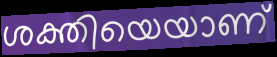
ശക്തിയെയാണ്